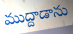
ముద్దాడాను